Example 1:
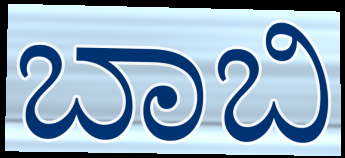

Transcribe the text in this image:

ಬಾಬಿ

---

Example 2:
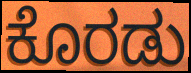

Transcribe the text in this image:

ಕೊರಡು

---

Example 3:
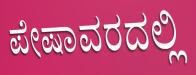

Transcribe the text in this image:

ಪೇಷಾವರದಲ್ಲಿ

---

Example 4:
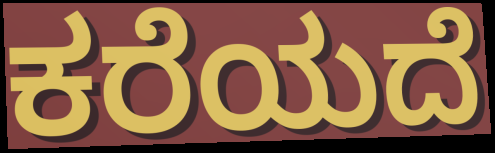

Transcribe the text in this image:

ಕರೆಯದೆ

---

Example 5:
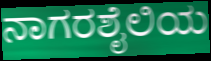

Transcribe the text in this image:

ನಾಗರಶೈಲಿಯ